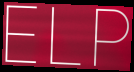
ELP